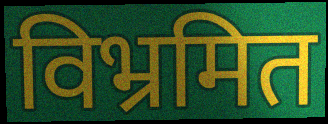
विभ्रमित